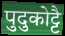
पुदुकोट्टै